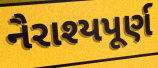
નૈરાશ્યપૂર્ણ